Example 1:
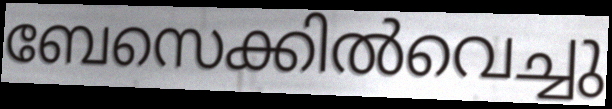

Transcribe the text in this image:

ബേസെക്കിൽവെച്ചു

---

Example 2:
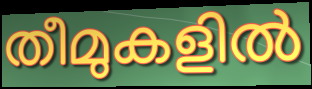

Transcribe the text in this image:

തീമുകളിൽ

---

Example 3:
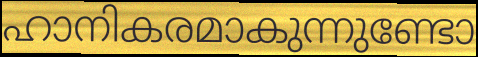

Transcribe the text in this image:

ഹാനികരമാകുന്നുണ്ടോ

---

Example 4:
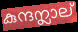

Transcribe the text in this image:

കുന്ദന്ലാല്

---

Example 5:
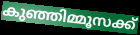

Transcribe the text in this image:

കുഞ്ഞിമ്മൂസക്ക്